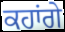
ਕਹਾਂਗੇ